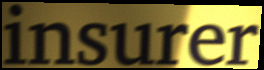
insurer